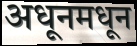
अधूनमधून